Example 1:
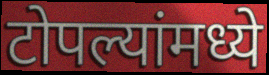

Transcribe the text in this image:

टोपल्यांमध्ये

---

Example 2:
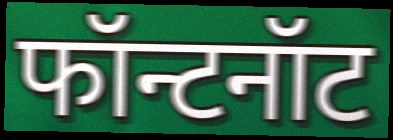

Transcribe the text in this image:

फॉन्टनॉट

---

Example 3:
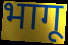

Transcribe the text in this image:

भागू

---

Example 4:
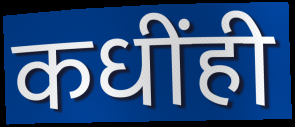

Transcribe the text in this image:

कधींही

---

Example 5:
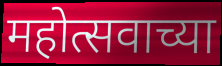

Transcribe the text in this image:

महोत्सवाच्या